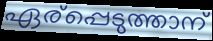
ഏര്പ്പെടുത്താന്